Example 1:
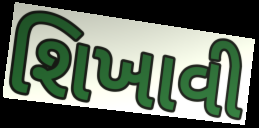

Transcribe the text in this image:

શિખાવી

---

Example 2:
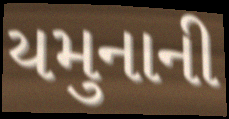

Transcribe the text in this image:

યમુનાની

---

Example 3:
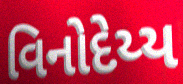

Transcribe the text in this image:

વિનોદેય્ય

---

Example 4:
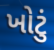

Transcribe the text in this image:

ખોટું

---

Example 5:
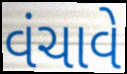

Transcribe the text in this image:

વંચાવે